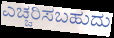
ಎಚ್ಚರಿಸಬಹುದು